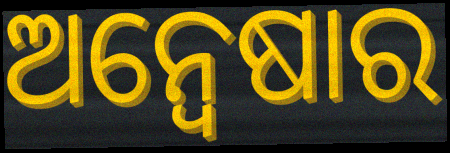
ଅନ୍ବେଷାର